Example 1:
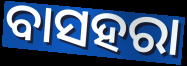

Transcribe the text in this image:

ବାସହରା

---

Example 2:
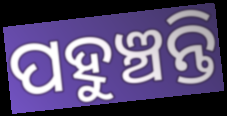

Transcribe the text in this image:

ପହୁଞ୍ଚନ୍ତି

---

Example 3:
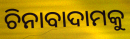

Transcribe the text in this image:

ଚିନାବାଦାମକୁ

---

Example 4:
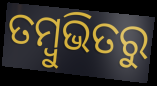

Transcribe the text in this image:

ତମ୍ବୁଭିତରୁ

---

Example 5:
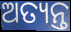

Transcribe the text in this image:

ଅତ୍ୟନ୍ତ